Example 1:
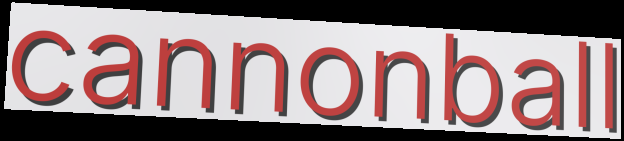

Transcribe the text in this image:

cannonball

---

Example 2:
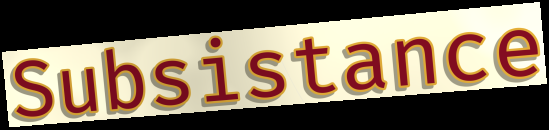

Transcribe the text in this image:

Subsistance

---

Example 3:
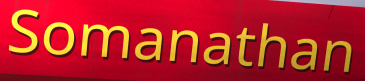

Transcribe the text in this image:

Somanathan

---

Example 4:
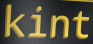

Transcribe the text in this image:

kint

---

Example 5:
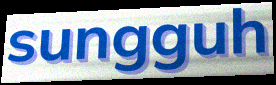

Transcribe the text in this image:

sungguh